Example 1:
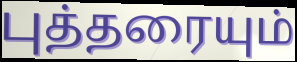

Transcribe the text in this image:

புத்தரையும்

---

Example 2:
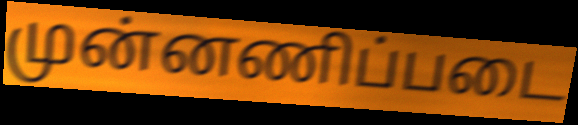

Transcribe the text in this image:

முன்னணிப்படை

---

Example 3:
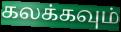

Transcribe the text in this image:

கலக்கவும்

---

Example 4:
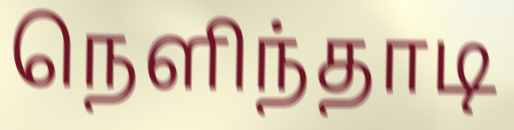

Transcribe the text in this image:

நெளிந்தாடி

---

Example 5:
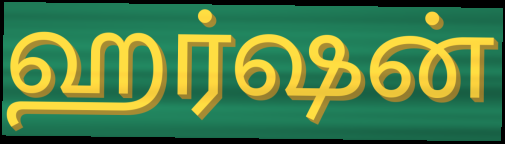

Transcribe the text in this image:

ஹர்ஷன்